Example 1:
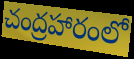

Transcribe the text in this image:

చంద్రహారంలో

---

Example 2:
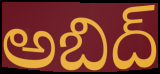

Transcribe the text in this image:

అబిద్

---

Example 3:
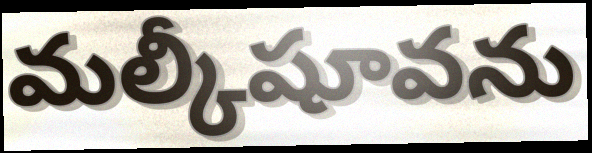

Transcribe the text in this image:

మల్కీషూవను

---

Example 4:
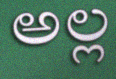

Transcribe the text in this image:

అల్ల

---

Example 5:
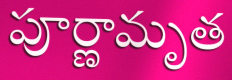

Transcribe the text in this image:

పూర్ణామృత